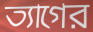
ত্যাগের